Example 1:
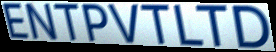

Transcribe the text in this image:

ENTPVTLTD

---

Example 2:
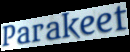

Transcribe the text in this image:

Parakeet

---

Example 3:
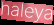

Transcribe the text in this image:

haleya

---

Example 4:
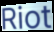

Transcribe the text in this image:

Riot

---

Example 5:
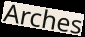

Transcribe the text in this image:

Arches